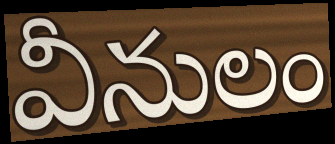
వీనులం